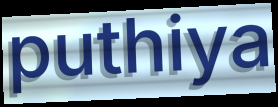
puthiya